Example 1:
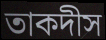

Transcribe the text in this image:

তাকদীস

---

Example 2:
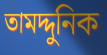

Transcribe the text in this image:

তামদ্দুনিক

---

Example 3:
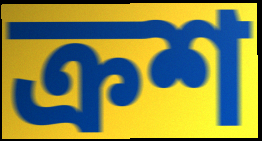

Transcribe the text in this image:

ক্রশ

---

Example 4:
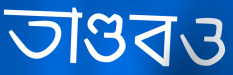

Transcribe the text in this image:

তাণ্ডবও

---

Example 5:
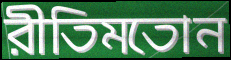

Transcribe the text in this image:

রীতিমতোন